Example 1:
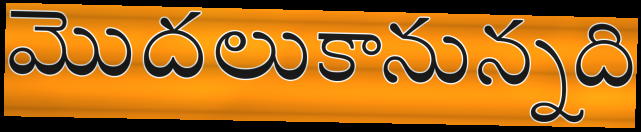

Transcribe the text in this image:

మొదలుకానున్నది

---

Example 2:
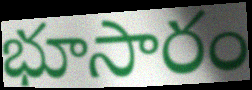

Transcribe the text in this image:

భూసారం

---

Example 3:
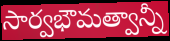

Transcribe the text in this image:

సార్వభౌమత్వాన్నీ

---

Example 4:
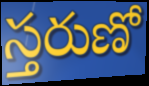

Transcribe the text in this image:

స్తరుణో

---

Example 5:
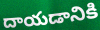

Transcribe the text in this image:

దాయడానికి